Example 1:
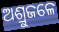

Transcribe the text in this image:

ଅଶ୍ରୁଜଳେ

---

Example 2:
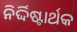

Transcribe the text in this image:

ନିର୍ଦ୍ଦିଷ୍ଟାର୍ଥକ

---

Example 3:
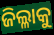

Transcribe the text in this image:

ଜିଲ୍ଳାକୁ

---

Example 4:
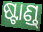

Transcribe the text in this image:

ଷ୍ଟାଣ୍ଡ୍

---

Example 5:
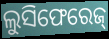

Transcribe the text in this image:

ଲୁସିଫେରେଜ୍